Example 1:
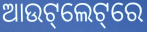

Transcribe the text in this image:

ଆଉଟ୍‌ଲେଟ୍‌ରେ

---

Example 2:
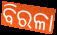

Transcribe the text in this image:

ବିରଳା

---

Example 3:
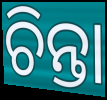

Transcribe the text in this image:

ଚିନ୍ତା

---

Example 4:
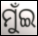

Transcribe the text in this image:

ମୁଁଇ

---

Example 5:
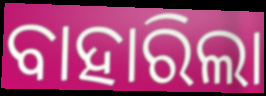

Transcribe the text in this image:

ବାହାରିଲା